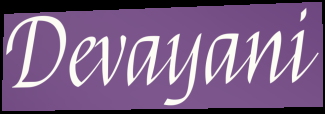
Devayani